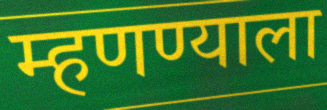
म्हणण्याला